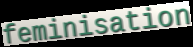
feminisation